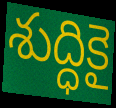
శుద్ధికై